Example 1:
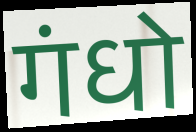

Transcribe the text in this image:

गंधो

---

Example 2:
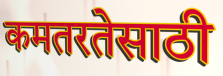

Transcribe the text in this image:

कमतरतेसाठी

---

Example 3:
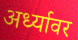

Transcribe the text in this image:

अर्ध्यावर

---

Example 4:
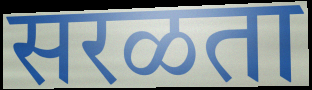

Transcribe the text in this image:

सरळता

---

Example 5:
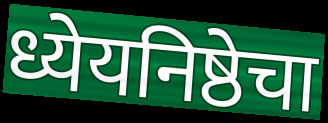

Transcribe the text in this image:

ध्येयनिष्ठेचा